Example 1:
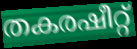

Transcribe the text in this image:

തകരഷീറ്റ്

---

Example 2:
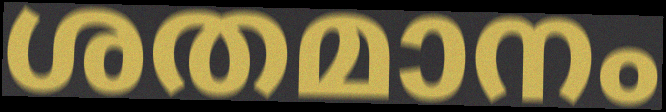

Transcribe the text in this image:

ശതമാനം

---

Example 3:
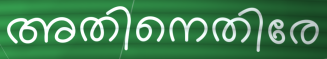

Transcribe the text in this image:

അതിനെതിരേ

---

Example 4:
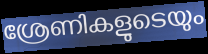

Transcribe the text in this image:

ശ്രേണികളുടെയും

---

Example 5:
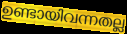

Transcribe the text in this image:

ഉണ്ടായിവന്നതല്ല